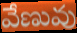
వేణువు